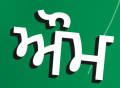
ਔਮ